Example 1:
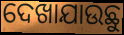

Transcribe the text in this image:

ଦେଖାଯାଉଛୁ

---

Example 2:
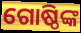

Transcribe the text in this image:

ଗୋଷ୍ଠିଙ୍କ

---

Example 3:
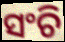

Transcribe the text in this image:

ସଂଚି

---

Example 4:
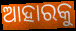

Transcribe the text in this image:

ଆହାରକୁ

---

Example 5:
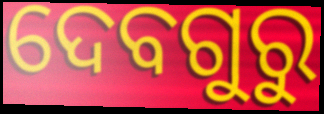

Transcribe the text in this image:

ଦେବଗୁରୁ